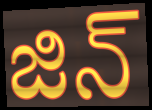
జిన్